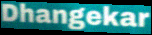
Dhangekar